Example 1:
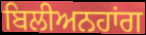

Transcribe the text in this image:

ਬਿਲੀਅਨਹਾਂਗ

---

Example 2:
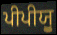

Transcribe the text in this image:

ਪੀਪੀਯੂ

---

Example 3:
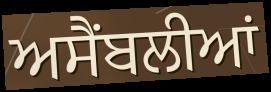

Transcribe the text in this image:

ਅਸੈਂਬਲੀਆਂ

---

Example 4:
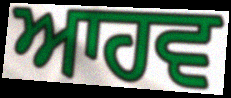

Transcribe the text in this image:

ਆਹਵ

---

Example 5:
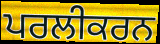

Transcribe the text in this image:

ਪਰਲੀਕਰਨ